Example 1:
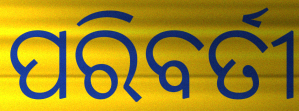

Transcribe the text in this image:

ପରିବର୍ତୀ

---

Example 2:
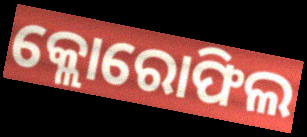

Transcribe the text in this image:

କ୍ଲୋରୋଫିଲ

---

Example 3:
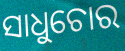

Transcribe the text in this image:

ସାଧୁଚୋର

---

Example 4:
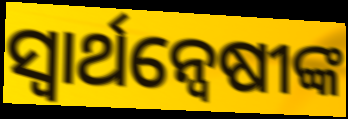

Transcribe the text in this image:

ସ୍ୱାର୍ଥନ୍ୱେଷୀଙ୍କ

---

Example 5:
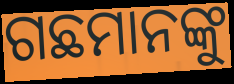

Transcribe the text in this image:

ଗଛମାନଙ୍କୁ